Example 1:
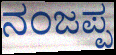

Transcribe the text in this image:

ನಂಜಪ್ಪ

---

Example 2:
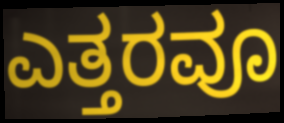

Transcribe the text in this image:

ಎತ್ತರವೂ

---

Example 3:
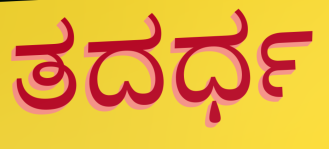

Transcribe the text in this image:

ತದರ್ಧ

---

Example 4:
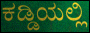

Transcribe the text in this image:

ಕಡ್ಡಿಯಲ್ಲಿ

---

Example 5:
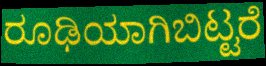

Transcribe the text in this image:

ರೂಢಿಯಾಗಿಬಿಟ್ಟರೆ